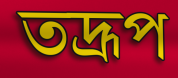
তদ্রূপ